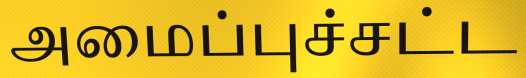
அமைப்புச்சட்ட